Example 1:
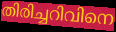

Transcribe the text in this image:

തിരിച്ചറിവിനെ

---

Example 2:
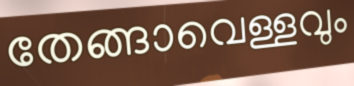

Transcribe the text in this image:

തേങ്ങാവെള്ളവും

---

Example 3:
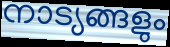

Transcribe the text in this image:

നാട്യങ്ങളും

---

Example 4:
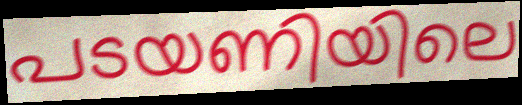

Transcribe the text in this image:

പടയണിയിലെ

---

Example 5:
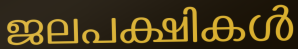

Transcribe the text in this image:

ജലപക്ഷികൾ